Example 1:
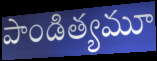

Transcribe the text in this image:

పాండిత్యమూ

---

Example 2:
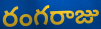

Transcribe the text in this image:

రంగరాజు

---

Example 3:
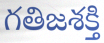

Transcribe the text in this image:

గతిజశక్తి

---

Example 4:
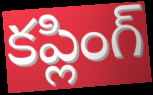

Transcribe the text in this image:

కప్లింగ్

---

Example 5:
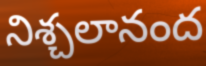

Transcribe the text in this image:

నిశ్చలానంద